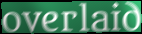
overlaid